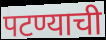
पटण्याची